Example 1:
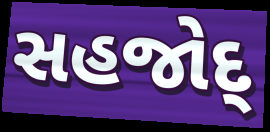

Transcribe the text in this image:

સહજોદ્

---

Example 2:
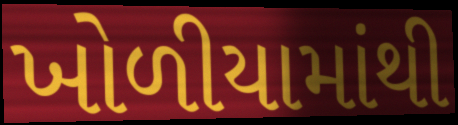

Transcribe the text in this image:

ખોળીયામાંથી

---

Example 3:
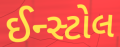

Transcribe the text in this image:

ઈન્સ્ટોલ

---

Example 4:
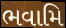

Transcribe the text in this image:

ભવામિ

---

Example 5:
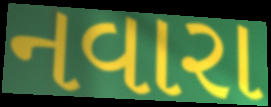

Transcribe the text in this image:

નવારા